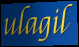
ulagil